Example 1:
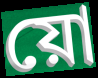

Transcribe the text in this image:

য়ো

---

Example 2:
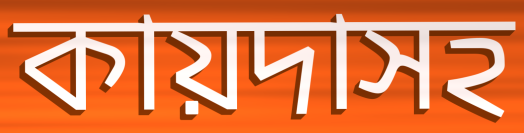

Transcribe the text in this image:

কায়দাসহ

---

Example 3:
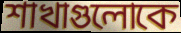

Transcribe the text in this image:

শাখাগুলোকে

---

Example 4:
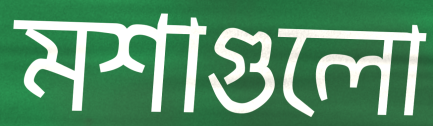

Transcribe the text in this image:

মশাগুলো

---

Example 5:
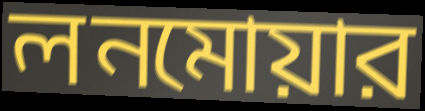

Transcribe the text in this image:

লনমোয়ার